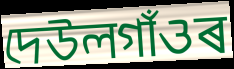
দেউলগাঁওৰ